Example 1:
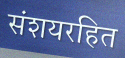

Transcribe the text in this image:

संशयरहित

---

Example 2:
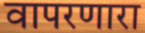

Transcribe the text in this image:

वापरणारा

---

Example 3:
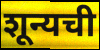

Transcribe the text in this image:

शून्यची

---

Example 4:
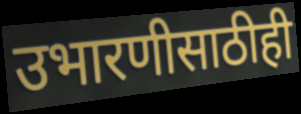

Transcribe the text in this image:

उभारणीसाठीही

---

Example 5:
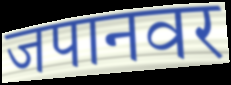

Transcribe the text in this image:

जपानवर